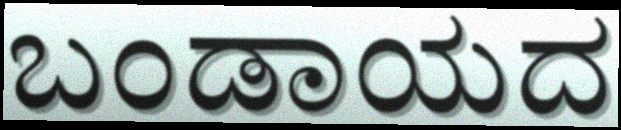
ಬಂಡಾಯದ